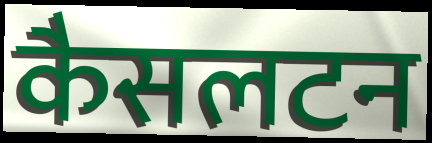
कैसलटन